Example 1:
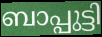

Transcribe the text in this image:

ബാപ്പുട്ടി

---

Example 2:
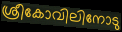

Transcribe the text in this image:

ശ്രീകോവിലിനോടു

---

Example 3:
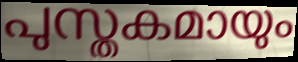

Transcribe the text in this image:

പുസ്തകമായും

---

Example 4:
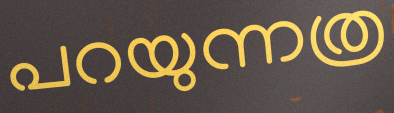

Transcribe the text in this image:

പറയുന്നത്ര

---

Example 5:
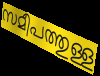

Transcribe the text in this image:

സമീപത്തുള്ള